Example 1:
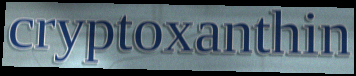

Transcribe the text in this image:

cryptoxanthin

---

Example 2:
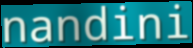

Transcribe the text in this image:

nandini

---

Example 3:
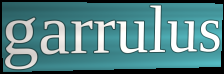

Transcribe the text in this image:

garrulus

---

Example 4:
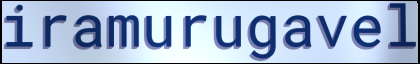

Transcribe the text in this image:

iramurugavel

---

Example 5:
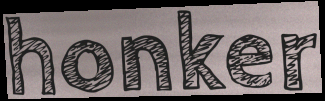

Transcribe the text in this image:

honker